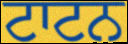
ਟਾਟਨ